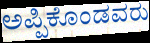
ಅಪ್ಪಿಕೊಂಡವರು